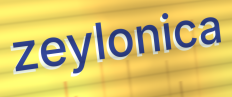
zeylonica